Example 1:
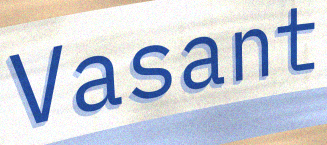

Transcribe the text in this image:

Vasant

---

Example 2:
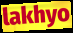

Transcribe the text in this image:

lakhyo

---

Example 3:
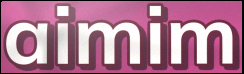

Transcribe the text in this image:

aimim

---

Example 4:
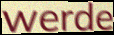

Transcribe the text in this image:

werde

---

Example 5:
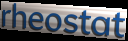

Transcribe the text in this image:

rheostat